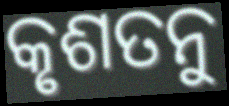
କୃଶତନୁ